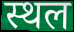
स्थल